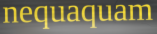
nequaquam